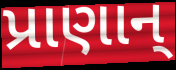
પ્રાણાન્